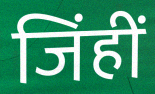
जिंहीं